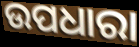
ଉପଧାରା